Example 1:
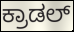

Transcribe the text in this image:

ಕ್ರಾಡಲ್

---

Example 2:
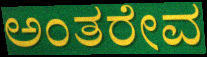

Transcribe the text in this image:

ಅಂತರೇವ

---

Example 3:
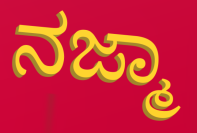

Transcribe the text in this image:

ನಜ್ಮಾ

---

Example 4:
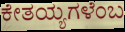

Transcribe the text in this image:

ಕೇತಯ್ಯಗಳೆಂಬ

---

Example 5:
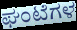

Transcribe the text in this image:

ಘಂಟೆಗಳ